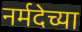
नर्मदेच्या